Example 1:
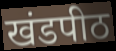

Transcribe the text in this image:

खंडपीठ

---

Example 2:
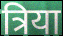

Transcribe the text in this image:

त्रिया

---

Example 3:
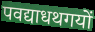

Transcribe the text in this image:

पवद्याधथगयों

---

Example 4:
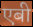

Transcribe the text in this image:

एबी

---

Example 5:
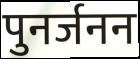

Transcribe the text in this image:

पुनर्जनन